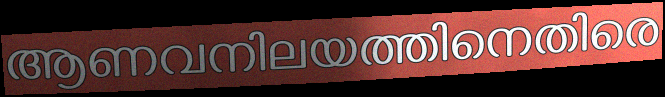
ആണവനിലയത്തിനെതിരെ